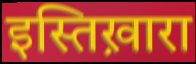
इस्तिख़ारा